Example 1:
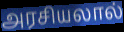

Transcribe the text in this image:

அரசியலால்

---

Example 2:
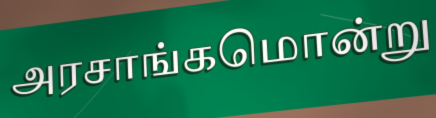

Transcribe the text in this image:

அரசாங்கமொன்று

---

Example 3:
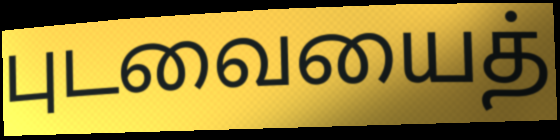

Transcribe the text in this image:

புடவையைத்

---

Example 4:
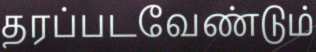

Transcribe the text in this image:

தரப்படவேண்டும்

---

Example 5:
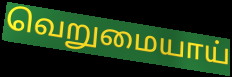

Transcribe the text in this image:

வெறுமையாய்